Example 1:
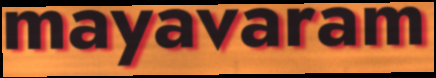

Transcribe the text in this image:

mayavaram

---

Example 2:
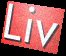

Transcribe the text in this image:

Liv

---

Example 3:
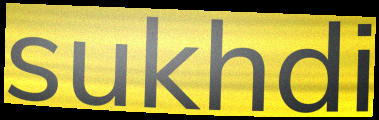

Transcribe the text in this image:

sukhdi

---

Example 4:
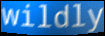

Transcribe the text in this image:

wildly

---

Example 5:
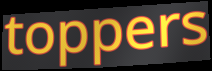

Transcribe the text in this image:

toppers